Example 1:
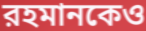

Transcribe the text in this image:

রহমানকেও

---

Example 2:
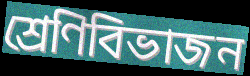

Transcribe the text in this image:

শ্রেণিবিভাজন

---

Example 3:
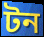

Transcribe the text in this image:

টন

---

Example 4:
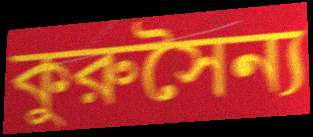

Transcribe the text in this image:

কুরুসৈন্য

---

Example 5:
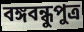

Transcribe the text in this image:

বঙ্গবন্ধুপুত্র